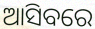
ଆସିବରେ